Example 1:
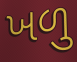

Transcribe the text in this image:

ખળુ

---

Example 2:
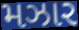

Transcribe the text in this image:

મઝાર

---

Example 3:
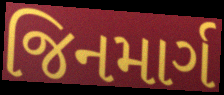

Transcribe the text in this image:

જિનમાર્ગ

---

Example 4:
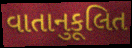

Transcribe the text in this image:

વાતાનુકૂલિત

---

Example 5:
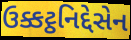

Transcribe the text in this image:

ઉક્કટ્ઠનિદ્દેસેન